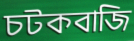
চটকবাজি